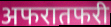
अफरातफरी